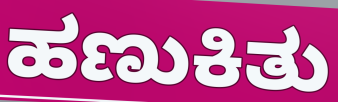
ಹಣುಕಿತು